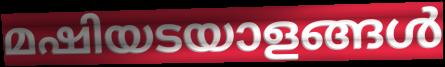
മഷിയടയാളങ്ങൾ